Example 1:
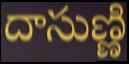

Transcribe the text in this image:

దాసుణ్ణి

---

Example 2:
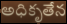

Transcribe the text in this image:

అధికృతేన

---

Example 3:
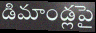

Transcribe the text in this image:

డిమాండ్లపై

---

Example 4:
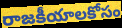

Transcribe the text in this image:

రాజకీయాలకోసం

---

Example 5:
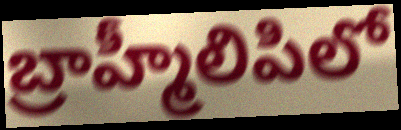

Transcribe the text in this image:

బ్రాహ్మీలిపిలో